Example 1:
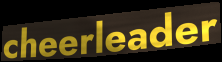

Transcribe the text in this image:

cheerleader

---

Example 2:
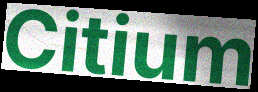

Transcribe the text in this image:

Citium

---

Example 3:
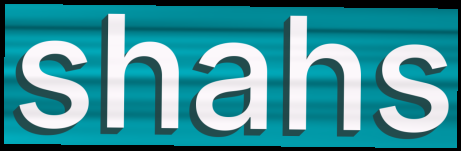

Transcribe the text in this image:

shahs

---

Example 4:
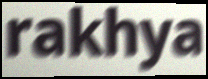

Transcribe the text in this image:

rakhya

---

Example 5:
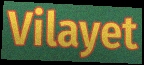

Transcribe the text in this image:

Vilayet